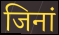
जिनां